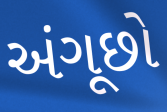
અંગૂછો